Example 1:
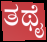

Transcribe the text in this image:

ತಥೈ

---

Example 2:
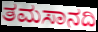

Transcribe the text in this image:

ತಮಸಾನದಿ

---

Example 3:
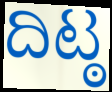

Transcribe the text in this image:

ದಿಟ್ಠ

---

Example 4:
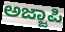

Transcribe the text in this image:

ಅಜ್ಜಾಪಿ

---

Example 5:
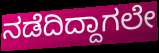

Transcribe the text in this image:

ನಡೆದಿದ್ದಾಗಲೇ